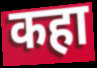
कहा